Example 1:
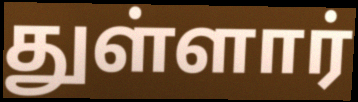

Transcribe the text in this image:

துள்ளார்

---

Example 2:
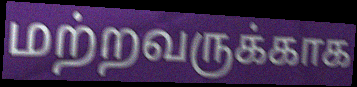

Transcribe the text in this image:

மற்றவருக்காக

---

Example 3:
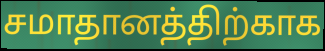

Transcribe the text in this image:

சமாதானத்திற்காக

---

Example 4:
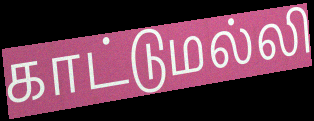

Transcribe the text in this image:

காட்டுமல்லி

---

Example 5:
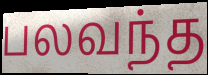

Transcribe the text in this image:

பலவந்த